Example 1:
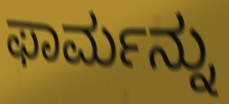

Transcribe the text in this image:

ಫಾರ್ಮನ್ನು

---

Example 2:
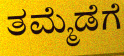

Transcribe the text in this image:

ತಮ್ಮೆಡೆಗೆ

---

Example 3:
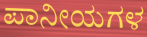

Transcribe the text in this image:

ಪಾನೀಯಗಳ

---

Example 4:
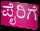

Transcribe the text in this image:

ಪೈರಿಗೆ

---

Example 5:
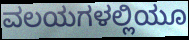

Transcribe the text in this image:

ವಲಯಗಳಲ್ಲಿಯೂ